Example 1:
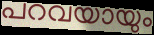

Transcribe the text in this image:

പറവയായും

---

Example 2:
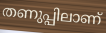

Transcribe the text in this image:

തണുപ്പിലാണ്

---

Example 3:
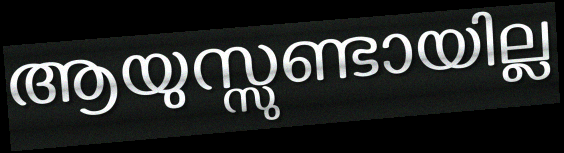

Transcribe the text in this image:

ആയുസ്സുണ്ടായില്ല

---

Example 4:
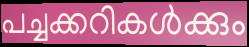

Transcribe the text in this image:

പച്ചക്കറികൾക്കും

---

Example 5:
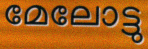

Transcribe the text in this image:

മേലോട്ടു